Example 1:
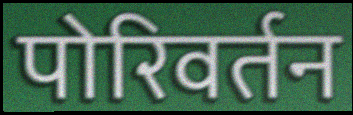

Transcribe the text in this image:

पोरिवर्तन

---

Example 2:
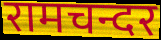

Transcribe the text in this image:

रामचन्दर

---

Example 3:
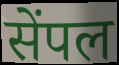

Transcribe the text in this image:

सेंपल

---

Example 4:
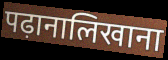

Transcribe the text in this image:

पढ़ानालिखाना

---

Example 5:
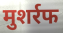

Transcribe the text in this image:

मुशर्रफ